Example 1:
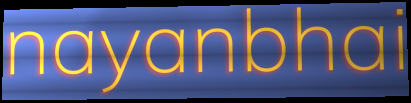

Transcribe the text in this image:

nayanbhai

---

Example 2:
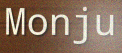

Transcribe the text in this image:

Monju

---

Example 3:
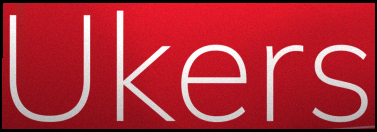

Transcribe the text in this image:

Ukers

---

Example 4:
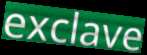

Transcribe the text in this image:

exclave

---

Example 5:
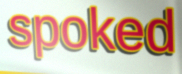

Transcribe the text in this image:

spoked